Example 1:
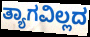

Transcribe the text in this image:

ತ್ಯಾಗವಿಲ್ಲದ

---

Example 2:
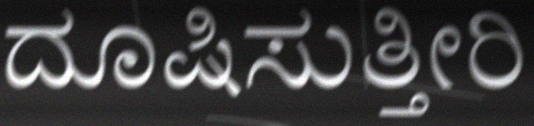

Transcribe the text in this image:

ದೂಷಿಸುತ್ತೀರಿ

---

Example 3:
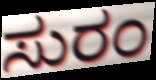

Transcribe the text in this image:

ಸುರಂ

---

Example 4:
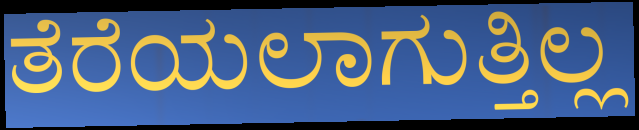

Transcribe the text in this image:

ತೆರೆಯಲಾಗುತ್ತಿಲ್ಲ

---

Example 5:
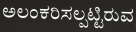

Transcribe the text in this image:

ಅಲಂಕರಿಸಲ್ಪಟ್ಟಿರುವ